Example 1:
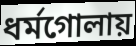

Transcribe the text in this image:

ধর্মগোলায়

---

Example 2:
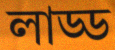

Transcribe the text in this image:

লাড্ড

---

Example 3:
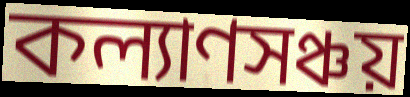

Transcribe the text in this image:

কল্যাণসঞ্চয়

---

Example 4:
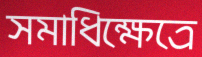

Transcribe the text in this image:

সমাধিক্ষেত্রে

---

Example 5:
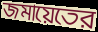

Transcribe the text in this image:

জমায়েতের